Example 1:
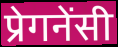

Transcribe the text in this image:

प्रेगनेंसी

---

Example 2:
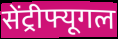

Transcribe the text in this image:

सेंट्रीफ्यूगल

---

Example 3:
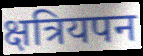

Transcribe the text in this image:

क्षत्रियपन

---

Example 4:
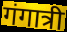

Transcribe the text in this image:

गंगात्री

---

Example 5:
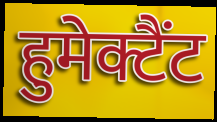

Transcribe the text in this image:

हुमेक्टैंट